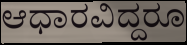
ಆಧಾರವಿದ್ದರೂ